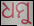
ଧମୁ